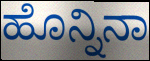
ಹೊನ್ನಿನಾ